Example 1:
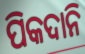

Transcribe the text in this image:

ପିକଦାନି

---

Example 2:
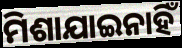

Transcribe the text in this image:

ମିଶାଯାଇନାହିଁ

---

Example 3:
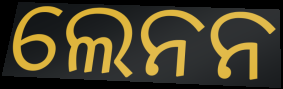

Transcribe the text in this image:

ଲେନନ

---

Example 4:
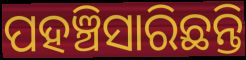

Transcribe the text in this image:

ପହଞ୍ଚିସାରିଛନ୍ତି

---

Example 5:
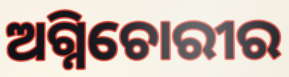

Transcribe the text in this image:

ଅଗ୍ନିଚୋରୀର